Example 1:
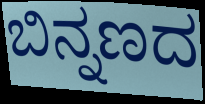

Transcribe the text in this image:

ಬಿನ್ನಣದ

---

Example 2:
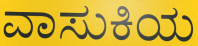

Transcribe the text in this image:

ವಾಸುಕಿಯ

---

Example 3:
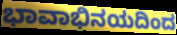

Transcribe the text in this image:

ಭಾವಾಭಿನಯದಿಂದ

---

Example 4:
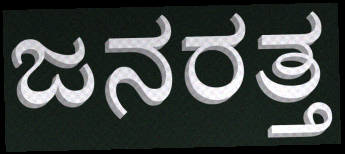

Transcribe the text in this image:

ಜನರತ್ತ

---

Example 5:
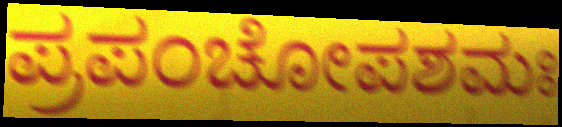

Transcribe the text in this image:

ಪ್ರಪಂಚೋಪಶಮಃ